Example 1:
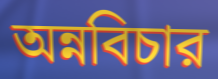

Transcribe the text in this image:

অন্নবিচার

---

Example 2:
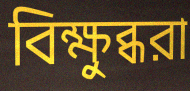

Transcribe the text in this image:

বিক্ষুব্ধরা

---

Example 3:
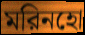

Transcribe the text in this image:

মরিনহো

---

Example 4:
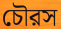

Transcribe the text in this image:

চৌরস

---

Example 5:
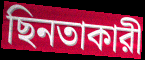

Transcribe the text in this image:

ছিনতাকারী